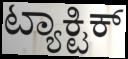
ಟ್ಯಾಕ್ಟಿಕ್